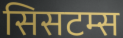
सिसटम्स